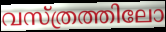
വസ്ത്രത്തിലോ